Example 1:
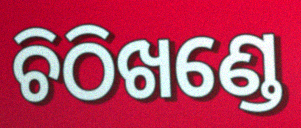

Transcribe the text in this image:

ଚିଠିଖଣ୍ଡେ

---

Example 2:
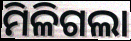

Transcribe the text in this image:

ମିଳିଗଲା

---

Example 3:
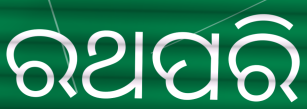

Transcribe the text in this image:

ରଥପରି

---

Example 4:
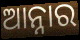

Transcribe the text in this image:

ଆନ୍ନାର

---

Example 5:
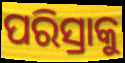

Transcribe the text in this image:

ପରିସ୍ରାକୁ